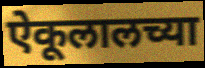
ऐकूलालच्या